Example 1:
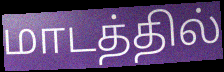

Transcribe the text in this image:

மாடத்தில்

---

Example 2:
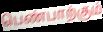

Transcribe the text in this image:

பெண்பாற்கும்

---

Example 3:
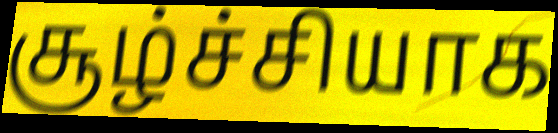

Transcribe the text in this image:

சூழ்ச்சியாக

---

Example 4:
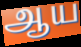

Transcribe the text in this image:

ஆய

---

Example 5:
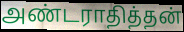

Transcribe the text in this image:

அண்டராதித்தன்